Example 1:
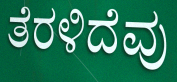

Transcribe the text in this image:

ತೆರಳಿದೆವು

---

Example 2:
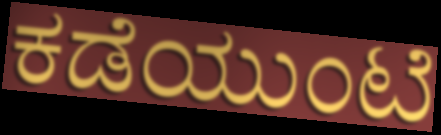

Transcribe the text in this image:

ಕಡೆಯುಂಟೆ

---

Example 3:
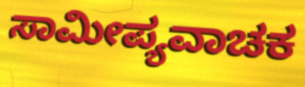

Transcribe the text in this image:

ಸಾಮೀಪ್ಯವಾಚಕ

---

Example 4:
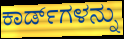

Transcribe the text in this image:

ಕಾರ್ಡ್‌ಗಳನ್ನು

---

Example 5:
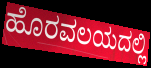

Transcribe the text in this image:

ಹೊರವಲಯದಲ್ಲಿ